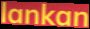
lankan